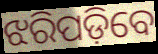
ଝରିପଡ଼ିବେ